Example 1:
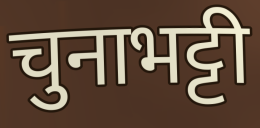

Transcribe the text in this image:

चुनाभट्टी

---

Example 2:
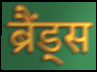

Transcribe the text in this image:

ब्रैंड्स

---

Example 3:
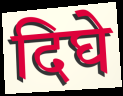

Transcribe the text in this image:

दिघे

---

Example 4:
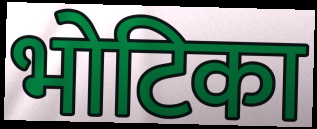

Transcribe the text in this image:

भोटिका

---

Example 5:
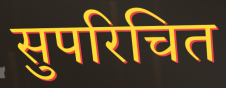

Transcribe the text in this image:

सुपरिचित